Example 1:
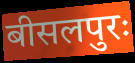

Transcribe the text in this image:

बीसलपुरः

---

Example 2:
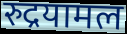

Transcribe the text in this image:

रुद्रयामल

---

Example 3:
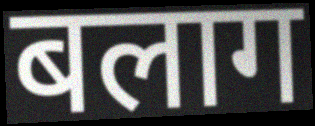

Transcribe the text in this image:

बलाग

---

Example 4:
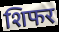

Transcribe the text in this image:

शिफर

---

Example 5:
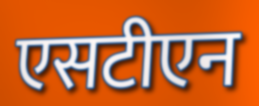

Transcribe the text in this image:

एसटीएन